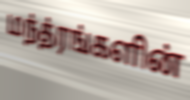
மந்த்ரங்களின்